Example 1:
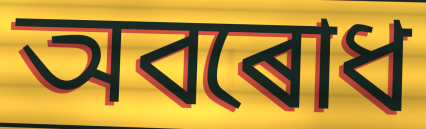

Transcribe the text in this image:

অবৰোধ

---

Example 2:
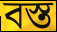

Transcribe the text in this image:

বস্ত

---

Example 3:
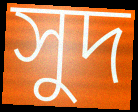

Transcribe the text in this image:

সুদ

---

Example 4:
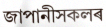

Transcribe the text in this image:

জাপানীসকলৰ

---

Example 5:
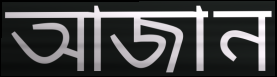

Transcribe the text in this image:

আজান